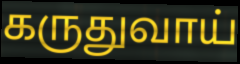
கருதுவாய்